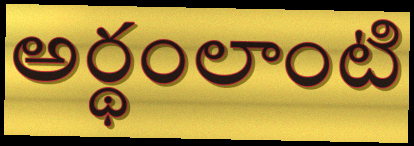
అర్థంలాంటి